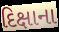
દિક્ષાના